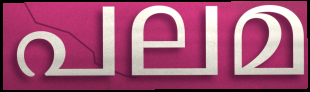
പലമ